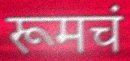
रूमचं